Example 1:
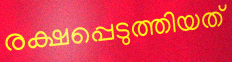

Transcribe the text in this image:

രക്ഷപ്പെടുത്തിയത്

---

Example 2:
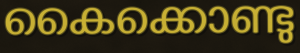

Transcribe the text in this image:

കൈക്കൊണ്ടു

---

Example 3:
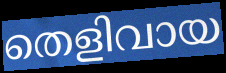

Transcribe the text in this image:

തെളിവായ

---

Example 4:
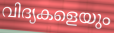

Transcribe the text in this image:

വിദ്യകളെയും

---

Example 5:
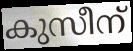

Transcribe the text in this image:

കുസീന്